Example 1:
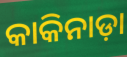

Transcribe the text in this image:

କାକିନାଡ଼ା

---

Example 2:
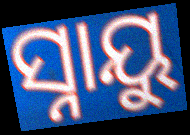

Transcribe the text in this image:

ସ୍ନାୟୁ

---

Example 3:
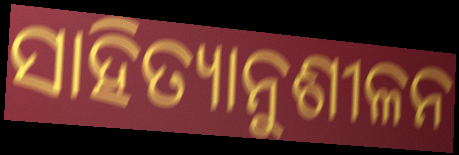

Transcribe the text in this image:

ସାହିତ୍ୟାନୁଶୀଳନ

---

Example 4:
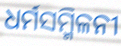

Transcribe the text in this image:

ଧର୍ମସମ୍ମିଳନୀ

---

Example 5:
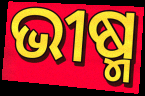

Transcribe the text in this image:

ଭୀଷ୍ମ